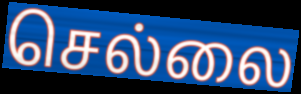
செல்லை